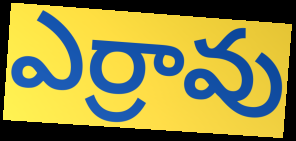
ఎర్రావు